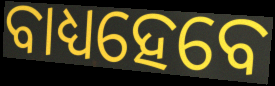
ବାଧ୍ୟହେବେ